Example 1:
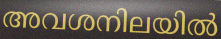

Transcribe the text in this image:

അവശനിലയിൽ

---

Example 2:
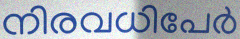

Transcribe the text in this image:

നിരവധിപേർ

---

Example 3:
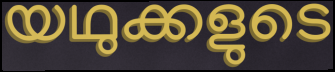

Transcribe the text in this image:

യഥുക്കളുടെ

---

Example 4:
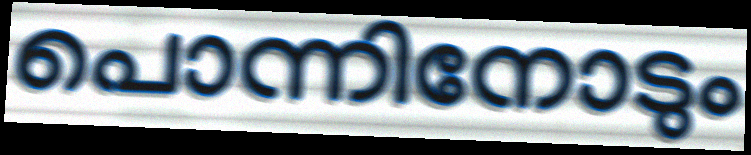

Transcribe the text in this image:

പൊന്നിനോടും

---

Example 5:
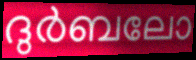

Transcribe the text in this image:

ദുർബലോ